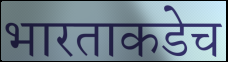
भारताकडेच